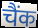
चैंक